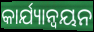
କାର୍ଯ୍ୟାନ୍ବୟନ